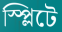
স্প্লিটে